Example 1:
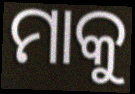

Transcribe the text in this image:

ମାକୁ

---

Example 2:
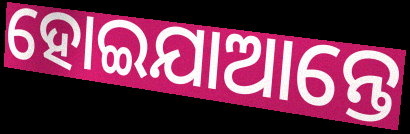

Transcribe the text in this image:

ହୋଇଯାଆନ୍ତେ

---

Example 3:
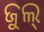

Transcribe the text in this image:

ଜୁଲ୍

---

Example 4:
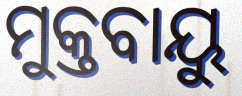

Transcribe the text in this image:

ମୁକ୍ତବାୟୁ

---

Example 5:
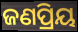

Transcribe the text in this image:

ଜଣପ୍ରିୟ